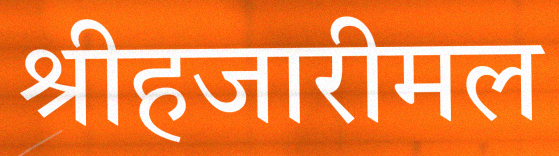
श्रीहजारीमल